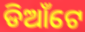
ଡିଆଁଟେ